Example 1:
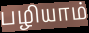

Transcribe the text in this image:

பழியாம்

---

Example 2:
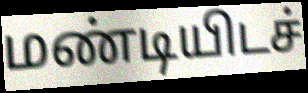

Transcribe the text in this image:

மண்டியிடச்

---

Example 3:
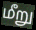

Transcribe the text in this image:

மீறு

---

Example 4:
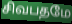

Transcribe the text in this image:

சிவபதமே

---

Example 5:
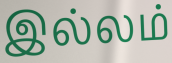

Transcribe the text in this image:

இல்லம்